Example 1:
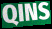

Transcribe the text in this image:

QINS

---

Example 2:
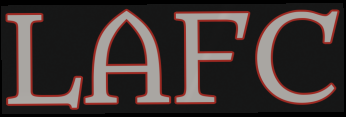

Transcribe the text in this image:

LAFC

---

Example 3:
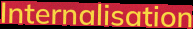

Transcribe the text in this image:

Internalisation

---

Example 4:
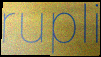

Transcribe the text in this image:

rupli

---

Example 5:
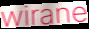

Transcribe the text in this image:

wirane